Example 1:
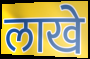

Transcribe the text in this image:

लाखे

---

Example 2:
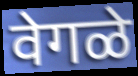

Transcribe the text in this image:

वेगळे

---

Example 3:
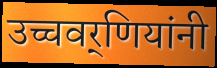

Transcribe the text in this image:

उच्चवर्णियांनी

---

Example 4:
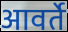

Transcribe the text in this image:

आवर्ते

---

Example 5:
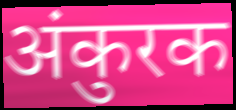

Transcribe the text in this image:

अंकुरक